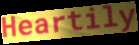
Heartily